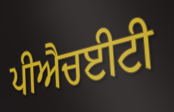
ਪੀਐਚਈਟੀ